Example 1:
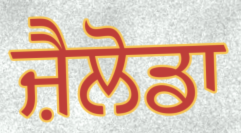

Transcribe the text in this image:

ਜ਼ੈਲੋਡਾ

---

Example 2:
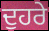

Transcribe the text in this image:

ਦੁਹਰੇ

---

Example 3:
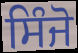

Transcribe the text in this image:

ਸਿੰਜੋ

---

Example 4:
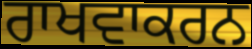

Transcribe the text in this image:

ਰਾਖਵਾਕਰਨ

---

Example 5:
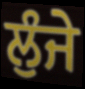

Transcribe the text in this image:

ਲੁੰਜੇ